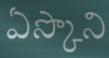
ఏస్కొని